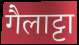
गैलाट्टा